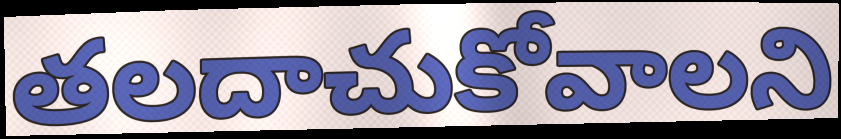
తలదాచుకోవాలని